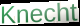
Knecht